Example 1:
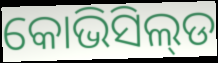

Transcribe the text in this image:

କୋଭିସିଲ୍‌ଡ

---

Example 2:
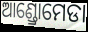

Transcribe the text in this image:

ଆଣ୍ଡ୍ରୋମେଡା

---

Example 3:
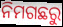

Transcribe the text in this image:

ନିମଗଛରୁ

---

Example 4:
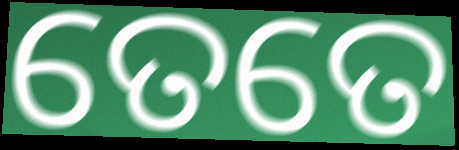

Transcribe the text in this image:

ତେତେ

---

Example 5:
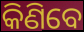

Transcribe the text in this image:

କିଣିବେ